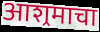
आश्रमाचा